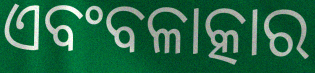
ଏବଂବଳାତ୍କାର